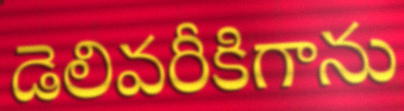
డెలివరీకిగాను